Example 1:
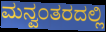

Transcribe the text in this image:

ಮನ್ವಂತರದಲ್ಲಿ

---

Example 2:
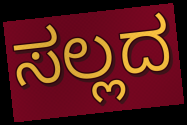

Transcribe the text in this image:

ಸಲ್ಲದ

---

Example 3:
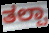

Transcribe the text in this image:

ತಲ್ಪಾ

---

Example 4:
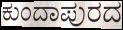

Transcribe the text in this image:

ಕುಂದಾಪುರದ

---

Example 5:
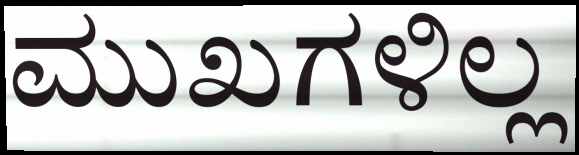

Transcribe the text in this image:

ಮುಖಗಳಿಲ್ಲ